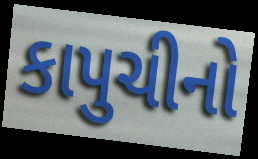
કાપુચીનો